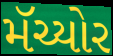
મૅચ્યોર